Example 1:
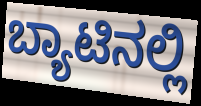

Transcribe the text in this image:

ಬ್ಯಾಟಿನಲ್ಲಿ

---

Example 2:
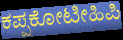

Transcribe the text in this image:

ಕಪ್ಪಕೋಟೀಹಿಪಿ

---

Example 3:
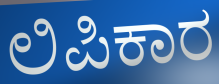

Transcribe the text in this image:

ಲಿಪಿಕಾರ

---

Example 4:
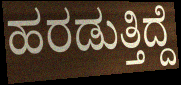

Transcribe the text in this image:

ಹರಡುತ್ತಿದ್ದೆ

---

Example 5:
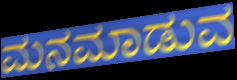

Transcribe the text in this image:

ಮನಮಾಡುವ